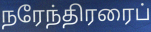
நரேந்திரரைப்